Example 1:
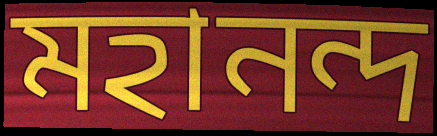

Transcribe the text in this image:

মহানন্দ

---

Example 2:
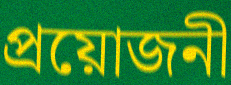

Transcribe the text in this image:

প্রয়োজনী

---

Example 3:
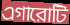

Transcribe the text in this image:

এগারোটি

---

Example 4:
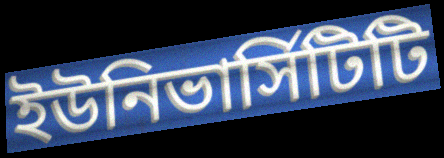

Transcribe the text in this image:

ইউনিভার্সিটিটি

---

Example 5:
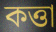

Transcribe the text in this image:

কত্তা